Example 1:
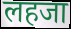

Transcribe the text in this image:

लहजा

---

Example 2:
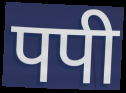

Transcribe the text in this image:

पपी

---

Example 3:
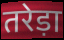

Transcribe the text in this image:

तरेड़ा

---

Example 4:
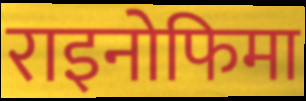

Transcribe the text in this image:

राइनोफिमा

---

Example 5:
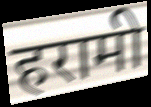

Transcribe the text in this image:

हरामी